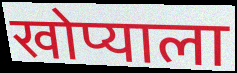
खोप्याला